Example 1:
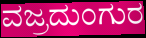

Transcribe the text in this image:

ವಜ್ರದುಂಗುರ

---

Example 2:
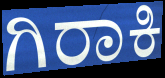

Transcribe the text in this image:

ಗಿರಾಕಿ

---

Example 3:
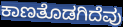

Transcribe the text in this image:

ಕಾಣತೊಡಗಿದೆವು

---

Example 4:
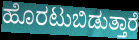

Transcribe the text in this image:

ಹೊರಟುಬಿಡುತ್ತಾರೆ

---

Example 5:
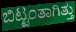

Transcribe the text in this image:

ಬಿಟ್ಟಂತಾಗಿತ್ತು